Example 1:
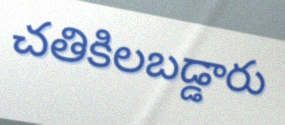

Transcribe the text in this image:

చతికిలబడ్డారు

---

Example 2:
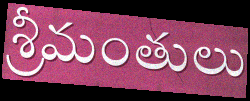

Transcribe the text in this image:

శ్రీమంతులు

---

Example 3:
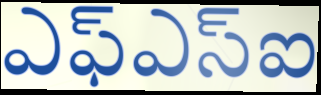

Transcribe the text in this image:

ఎఫ్ఎస్ఐ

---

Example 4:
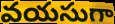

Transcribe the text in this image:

వయసుగా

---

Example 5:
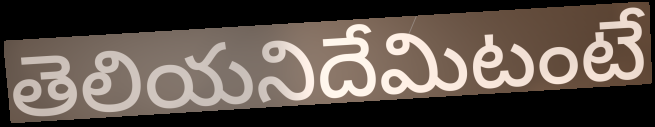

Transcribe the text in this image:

తెలియనిదేమిటంటే